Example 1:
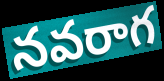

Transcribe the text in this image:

నవరాగ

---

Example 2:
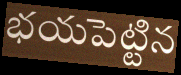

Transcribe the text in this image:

భయపెట్టిన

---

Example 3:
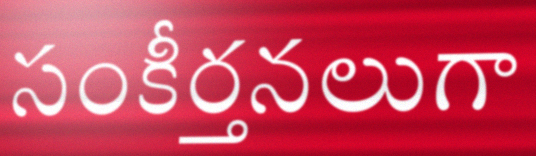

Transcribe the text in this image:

సంకీర్తనలుగా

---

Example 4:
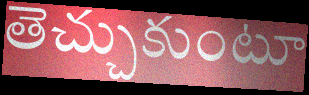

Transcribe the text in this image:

తెచ్చుకుంటూ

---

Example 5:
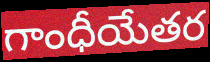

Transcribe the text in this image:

గాంధీయేతర